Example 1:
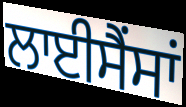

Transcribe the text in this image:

ਲਾਈਸੈਂਸਾਂ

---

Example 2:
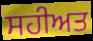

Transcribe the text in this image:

ਸਹੀਅਤ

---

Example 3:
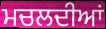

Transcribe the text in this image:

ਮਚਲਦੀਆਂ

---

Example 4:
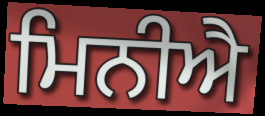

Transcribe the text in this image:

ਮਿਨੀਐ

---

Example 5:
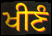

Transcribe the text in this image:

ਖੀਣੰ